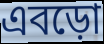
এবড়ো